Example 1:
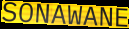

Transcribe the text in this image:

SONAWANE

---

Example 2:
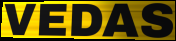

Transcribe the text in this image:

VEDAS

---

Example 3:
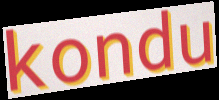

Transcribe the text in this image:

kondu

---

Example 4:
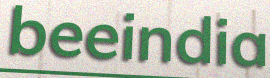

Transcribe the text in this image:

beeindia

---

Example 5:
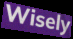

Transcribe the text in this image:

Wisely